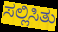
ಸಲ್ಲಿಸಿತು